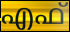
എഫ്